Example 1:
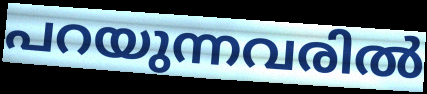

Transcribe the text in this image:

പറയുന്നവരിൽ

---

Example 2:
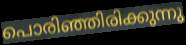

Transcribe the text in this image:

പൊരിഞ്ഞിരിക്കുന്നു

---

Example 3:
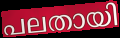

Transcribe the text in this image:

പലതായി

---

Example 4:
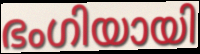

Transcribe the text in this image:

ഭംഗിയായി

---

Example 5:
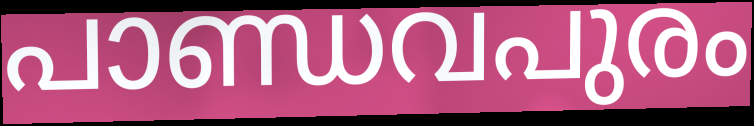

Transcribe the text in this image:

പാണ്ഡവപുരം